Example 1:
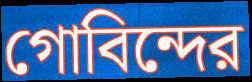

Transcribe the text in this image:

গোবিন্দের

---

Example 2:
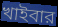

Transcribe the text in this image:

খাইবার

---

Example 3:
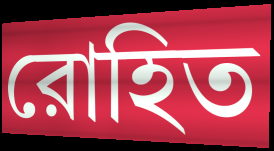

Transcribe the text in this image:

রোহিত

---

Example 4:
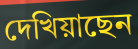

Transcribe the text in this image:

দেখিয়াছেন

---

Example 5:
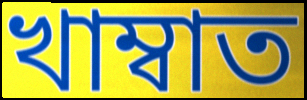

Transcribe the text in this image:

খাম্বাত